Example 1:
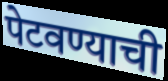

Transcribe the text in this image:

पेटवण्याची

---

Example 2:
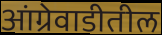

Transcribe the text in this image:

आंग्रेवाडीतील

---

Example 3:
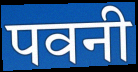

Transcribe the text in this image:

पवनी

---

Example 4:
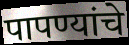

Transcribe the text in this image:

पापण्यांचे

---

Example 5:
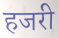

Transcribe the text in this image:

हजरी